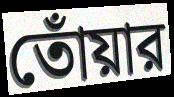
তোঁয়ার